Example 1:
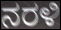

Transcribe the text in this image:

ನರಳಿ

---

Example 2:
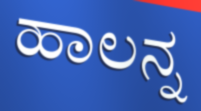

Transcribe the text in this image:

ಹಾಲನ್ನ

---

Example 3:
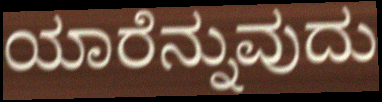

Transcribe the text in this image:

ಯಾರೆನ್ನುವುದು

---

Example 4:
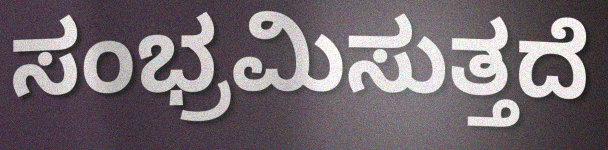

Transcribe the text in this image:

ಸಂಭ್ರಮಿಸುತ್ತದೆ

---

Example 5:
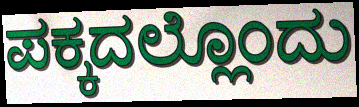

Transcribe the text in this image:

ಪಕ್ಕದಲ್ಲೊಂದು